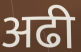
अढी